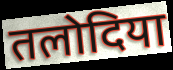
तलोदिया